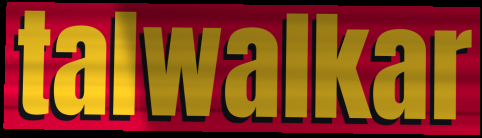
talwalkar